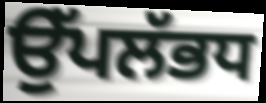
ਉੱਪਲੱਭਧ